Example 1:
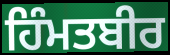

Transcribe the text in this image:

ਹਿੰਮਤਬੀਰ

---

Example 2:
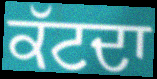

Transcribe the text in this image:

ਕੱਟਦਾ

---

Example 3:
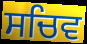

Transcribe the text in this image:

ਸਚਿਵ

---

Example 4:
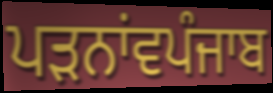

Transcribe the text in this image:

ਪੜਨਾਂਵਪੰਜਾਬ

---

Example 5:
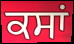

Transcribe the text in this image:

ਕਸਾਂ